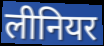
लीनियर